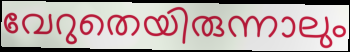
വേറുതെയിരുന്നാലും